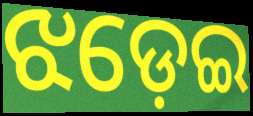
ଝଡ଼େଇ